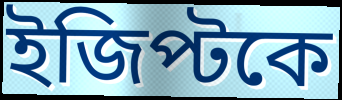
ইজিপ্টকে